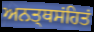
ਅਨਤ੍ਥਸਂਹਿਤਂ